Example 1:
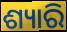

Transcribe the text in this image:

ଶ୍ୟାରି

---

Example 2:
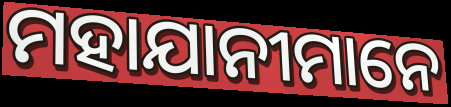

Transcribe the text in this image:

ମହାଯାନୀମାନେ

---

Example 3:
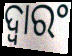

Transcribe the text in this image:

ଦ୍ୱାରଂ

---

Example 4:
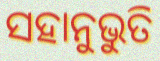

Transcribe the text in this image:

ସହାନୁଭୁତି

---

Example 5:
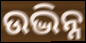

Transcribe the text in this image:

ଉଦ୍ଭିନ୍ନ